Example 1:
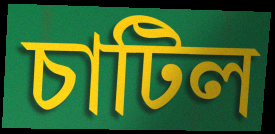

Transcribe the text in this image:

চাটিল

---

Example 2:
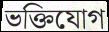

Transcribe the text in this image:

ভক্তিযোগ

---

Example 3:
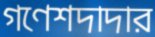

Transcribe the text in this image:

গণেশদাদার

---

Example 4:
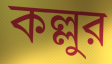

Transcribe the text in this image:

কল্লুর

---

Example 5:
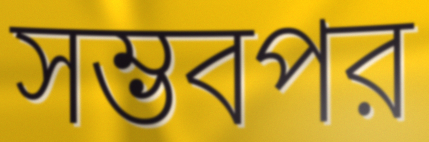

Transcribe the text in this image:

সম্ভবপর